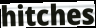
hitches